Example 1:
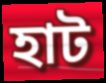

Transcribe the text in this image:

হাট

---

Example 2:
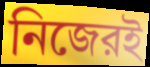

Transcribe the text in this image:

নিজেরই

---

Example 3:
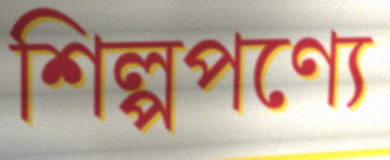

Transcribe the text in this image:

শিল্পপণ্যে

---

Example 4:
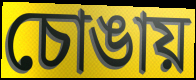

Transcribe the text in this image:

চোঙায়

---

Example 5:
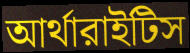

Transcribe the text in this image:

আর্থারাইটিস